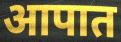
आपात